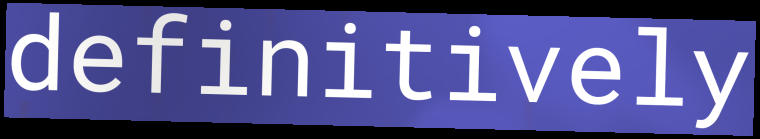
definitively